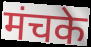
मंचके